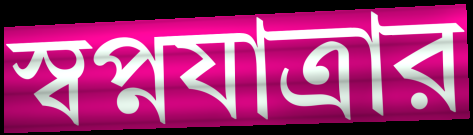
স্বপ্নযাত্রার